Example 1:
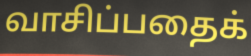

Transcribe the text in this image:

வாசிப்பதைக்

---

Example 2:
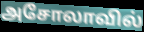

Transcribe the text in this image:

அசோலாவில்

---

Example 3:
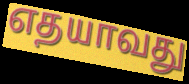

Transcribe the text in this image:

எதயாவது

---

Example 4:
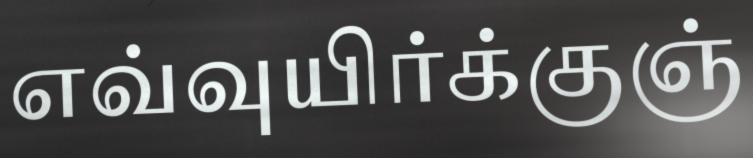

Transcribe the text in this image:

எவ்வுயிர்க்குஞ்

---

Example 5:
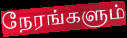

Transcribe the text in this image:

நேரங்களும்